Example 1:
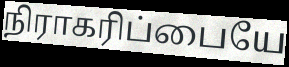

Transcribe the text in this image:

நிராகரிப்பையே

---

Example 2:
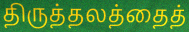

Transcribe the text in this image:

திருத்தலத்தைத்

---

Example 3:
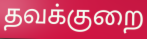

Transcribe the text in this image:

தவக்குறை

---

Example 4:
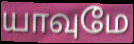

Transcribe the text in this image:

யாவுமே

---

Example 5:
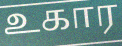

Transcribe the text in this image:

உகார